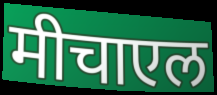
मीचाएल